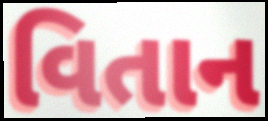
વિતાન